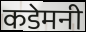
कडेमनी